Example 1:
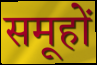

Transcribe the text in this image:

समूहों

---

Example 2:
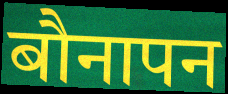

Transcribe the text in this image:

बौनापन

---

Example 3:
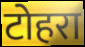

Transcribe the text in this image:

टोहरा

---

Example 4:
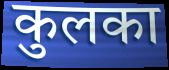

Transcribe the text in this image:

कुलका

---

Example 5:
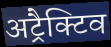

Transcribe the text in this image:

अट्रैक्टिव